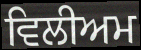
ਵਿਲੀਅਮ